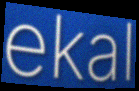
ekal